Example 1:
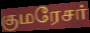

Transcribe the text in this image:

குமரேசர்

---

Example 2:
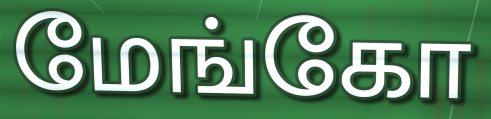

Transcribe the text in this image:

மேங்கோ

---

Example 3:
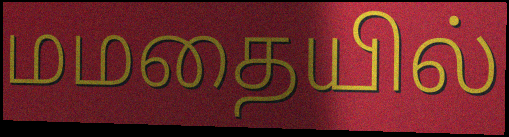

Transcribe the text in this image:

மமதையில்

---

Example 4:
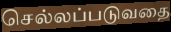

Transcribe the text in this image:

செல்லப்படுவதை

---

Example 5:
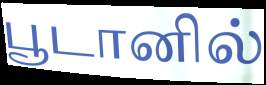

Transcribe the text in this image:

பூடானில்